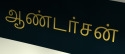
ஆண்டர்சன்